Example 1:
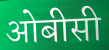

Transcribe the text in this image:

ओबीसी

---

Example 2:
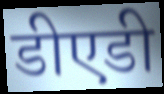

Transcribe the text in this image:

डीएडी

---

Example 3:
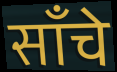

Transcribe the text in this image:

साँचे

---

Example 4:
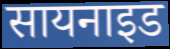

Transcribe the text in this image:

सायनाइड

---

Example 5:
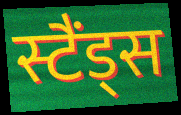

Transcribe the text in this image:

स्टैंड्स